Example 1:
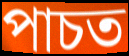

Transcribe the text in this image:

পাচত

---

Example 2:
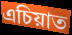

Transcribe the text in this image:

এচিয়াত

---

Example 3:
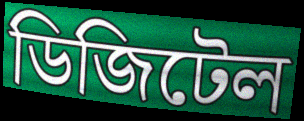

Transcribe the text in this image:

ডিজিটেল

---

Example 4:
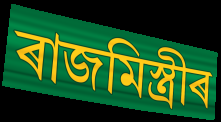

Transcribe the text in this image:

ৰাজমিস্ত্ৰীৰ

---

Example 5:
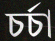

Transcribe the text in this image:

চৰ্চা